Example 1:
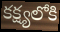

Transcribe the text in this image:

కక్ష్యలోకి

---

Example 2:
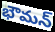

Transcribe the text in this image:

భౌమన్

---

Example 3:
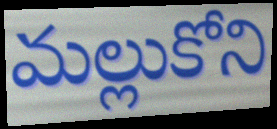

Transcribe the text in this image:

మల్లుకోని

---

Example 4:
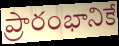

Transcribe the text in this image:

ప్రారంభానికే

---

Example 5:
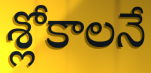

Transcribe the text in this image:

శ్లోకాలనే